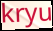
kryu